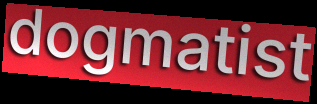
dogmatist